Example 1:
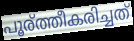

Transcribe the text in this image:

പൂര്ത്തീകരിച്ചത്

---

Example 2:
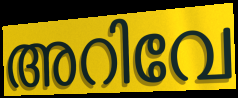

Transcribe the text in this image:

അറിവേ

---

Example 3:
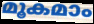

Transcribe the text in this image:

മൂകമാം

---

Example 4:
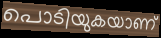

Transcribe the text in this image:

പൊടിയുകയാണ്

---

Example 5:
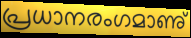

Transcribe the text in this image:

പ്രധാനരംഗമാണു്